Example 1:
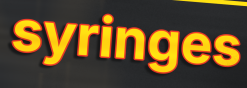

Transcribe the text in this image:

syringes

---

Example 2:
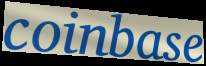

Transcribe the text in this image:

coinbase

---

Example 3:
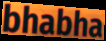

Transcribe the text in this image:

bhabha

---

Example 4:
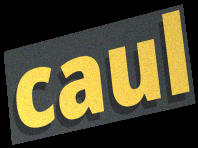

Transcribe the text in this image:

caul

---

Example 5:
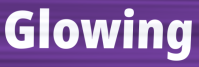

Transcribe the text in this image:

Glowing